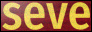
seve